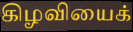
கிழவியைக்